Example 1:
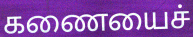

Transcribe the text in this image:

கணையைச்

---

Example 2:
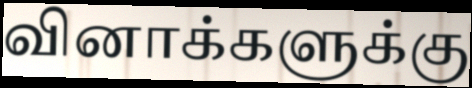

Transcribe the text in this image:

வினாக்களுக்கு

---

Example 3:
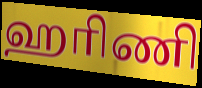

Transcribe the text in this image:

ஹரிணி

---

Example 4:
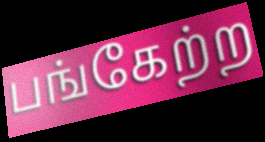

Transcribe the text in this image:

பங்கேற்ற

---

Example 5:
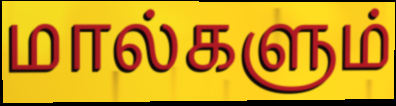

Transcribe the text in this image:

மால்களும்